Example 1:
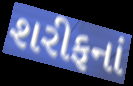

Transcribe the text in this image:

શરીફનાં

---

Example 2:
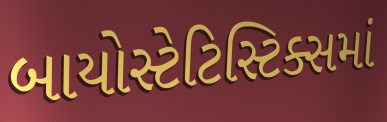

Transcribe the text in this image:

બાયોસ્ટેટિસ્ટિક્સમાં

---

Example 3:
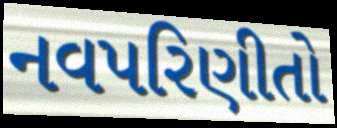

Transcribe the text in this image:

નવપરિણીતો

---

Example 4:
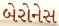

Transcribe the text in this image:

બેરોનેસ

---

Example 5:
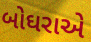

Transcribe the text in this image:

બોઘરાએ